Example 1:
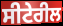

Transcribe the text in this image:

ਸੀਟੇਰੀਲ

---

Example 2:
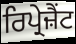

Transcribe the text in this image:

ਰਿਪ੍ਰੇਜ਼ੈਂਟ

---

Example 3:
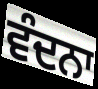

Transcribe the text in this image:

ਵੰਦਨਾ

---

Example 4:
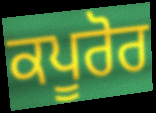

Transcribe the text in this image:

ਕਪੂਰੋਰ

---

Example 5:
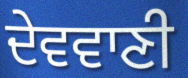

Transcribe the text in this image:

ਦੇਵਵਾਣੀ